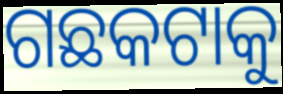
ଗଛକଟାକୁ